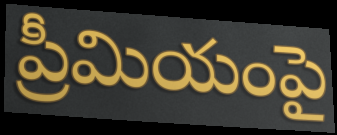
ప్రీమియంపై